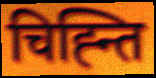
चिह्न्ति